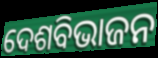
ଦେଶବିଭାଜନ